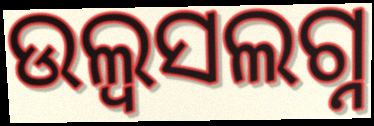
ଉଲ୍ୱସଲଗ୍ନ